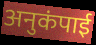
अनुकंपाई